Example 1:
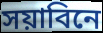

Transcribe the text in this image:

সয়াবিনে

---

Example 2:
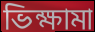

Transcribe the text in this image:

ভিক্ষামা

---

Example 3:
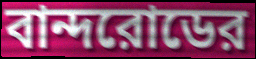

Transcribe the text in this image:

বান্দরোডের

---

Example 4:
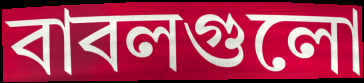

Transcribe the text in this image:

বাবলগুলো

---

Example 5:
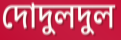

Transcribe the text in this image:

দোদুলদুল